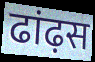
ढांढ़स